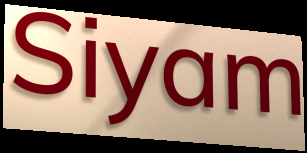
Siyam